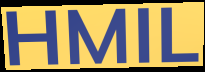
HMIL